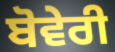
ਬੋਵੇਰੀ